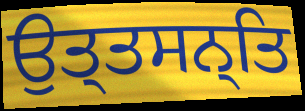
ਉਤ੍ਤਸਨ੍ਤਿ